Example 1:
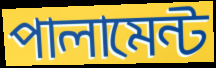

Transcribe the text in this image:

পালামেন্ট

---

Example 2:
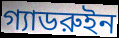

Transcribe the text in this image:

গ্যাডরুইন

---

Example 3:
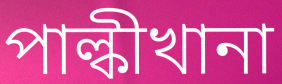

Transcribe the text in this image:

পাল্কীখানা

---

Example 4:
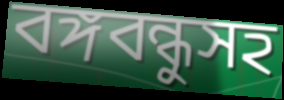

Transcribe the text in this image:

বঙ্গবন্ধুসহ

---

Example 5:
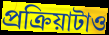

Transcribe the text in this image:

প্রক্রিয়াটাও